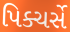
પિક્ચર્સે